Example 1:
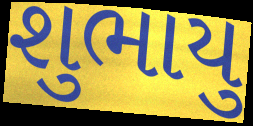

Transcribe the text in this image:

શુભાયુ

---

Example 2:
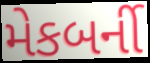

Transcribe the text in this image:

મેકબર્ની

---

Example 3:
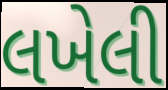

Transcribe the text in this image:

લખેલી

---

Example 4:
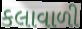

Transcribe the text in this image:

કલાવાળી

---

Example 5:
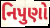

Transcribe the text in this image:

નિપુણો